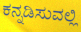
ಕನ್ನಡಿಸುವಲ್ಲಿ